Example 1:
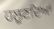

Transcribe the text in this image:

ਹਲੂਣਦਿਆਂ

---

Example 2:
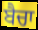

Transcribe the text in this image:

ਬੈਚਾ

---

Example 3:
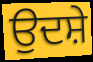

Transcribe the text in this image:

ਉਦਸ਼ੇ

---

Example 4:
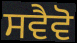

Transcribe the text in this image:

ਸਵੈਵੋ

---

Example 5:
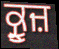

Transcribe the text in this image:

ਕ੍ਰੂਜ਼